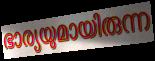
ഭാര്യയുമായിരുന്ന